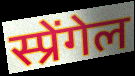
स्प्रेंगेल